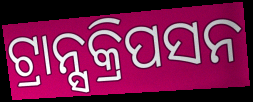
ଟ୍ରାନ୍ସକ୍ରିପସନ